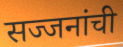
सज्जनांची